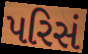
પરિસં